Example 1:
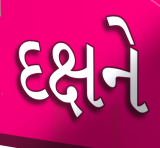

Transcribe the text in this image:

દક્ષને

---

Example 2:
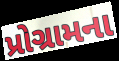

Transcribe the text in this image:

પ્રોગ્રામના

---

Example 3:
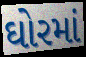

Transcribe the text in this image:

ઘોરમાં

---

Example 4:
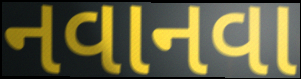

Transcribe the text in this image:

નવાનવા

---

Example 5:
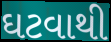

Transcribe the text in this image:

ઘટવાથી